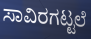
ಸಾವಿರಗಟ್ಟಲೆ